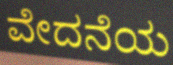
ವೇದನೆಯ